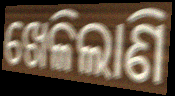
ଖେଳିଲାଣି